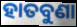
ହାତବୁଣା